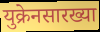
युक्रेनसारख्या